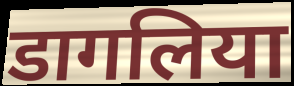
डागलिया